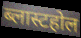
ब्लास्टहोल